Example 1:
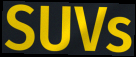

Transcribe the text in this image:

SUVs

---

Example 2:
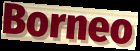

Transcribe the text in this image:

Borneo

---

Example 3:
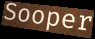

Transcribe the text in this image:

Sooper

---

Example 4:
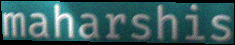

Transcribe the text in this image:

maharshis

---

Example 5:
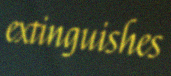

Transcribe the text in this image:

extinguishes